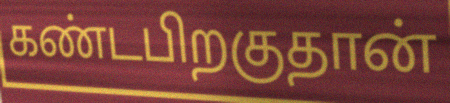
கண்டபிறகுதான்